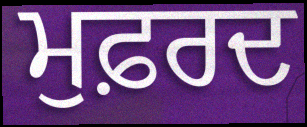
ਮੁਫ਼ਰਦ